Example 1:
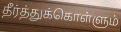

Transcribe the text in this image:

தீர்த்துக்கொள்ளும்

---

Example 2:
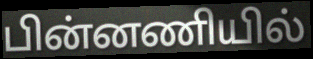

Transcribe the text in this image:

பின்னணியில்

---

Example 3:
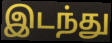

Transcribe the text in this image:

இடந்து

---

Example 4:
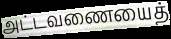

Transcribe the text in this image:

அட்டவணையைத்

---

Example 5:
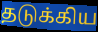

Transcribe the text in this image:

தடுக்கிய